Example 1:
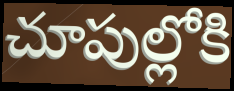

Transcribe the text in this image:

చూపుల్లోకి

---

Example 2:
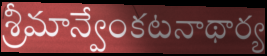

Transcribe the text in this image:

శ్రీమాన్వేంకటనాథార్య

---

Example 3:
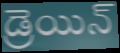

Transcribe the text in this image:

డ్రెయిన్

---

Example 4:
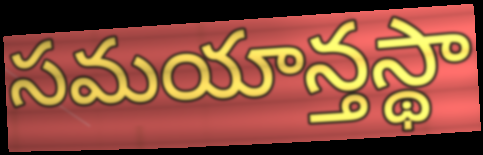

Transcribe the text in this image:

సమయాన్తస్థా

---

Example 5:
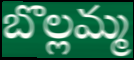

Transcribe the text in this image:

బొల్లమ్మ